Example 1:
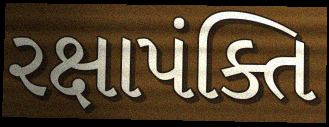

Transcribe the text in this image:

રક્ષાપંક્તિ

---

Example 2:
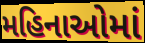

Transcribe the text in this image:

મહિનાઓમાં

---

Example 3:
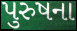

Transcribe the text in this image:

પુરુષના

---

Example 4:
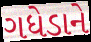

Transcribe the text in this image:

ગધેડાને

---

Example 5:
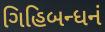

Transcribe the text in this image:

ગિહિબન્ધનં